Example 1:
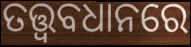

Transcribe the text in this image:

ତତ୍ତ୍ୱବଧାନରେ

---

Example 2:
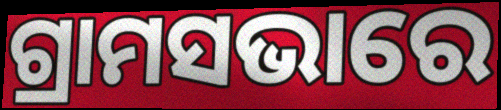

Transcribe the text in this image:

ଗ୍ରାମସଭାରେ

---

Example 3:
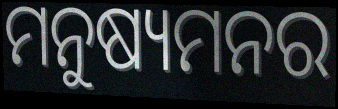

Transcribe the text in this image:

ମନୁଷ୍ୟମନର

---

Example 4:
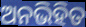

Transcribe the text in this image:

ଅନଭିହିତ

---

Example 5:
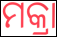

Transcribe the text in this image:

ମକ୍ରା